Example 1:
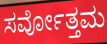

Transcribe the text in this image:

ಸರ್ವೋತ್ತಮ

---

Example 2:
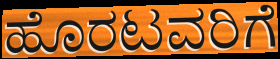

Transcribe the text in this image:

ಹೊರಟವರಿಗೆ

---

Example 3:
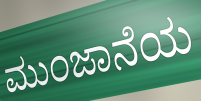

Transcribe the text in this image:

ಮುಂಜಾನೆಯ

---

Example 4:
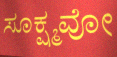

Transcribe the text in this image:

ಸೂಕ್ಷ್ಮವೋ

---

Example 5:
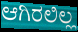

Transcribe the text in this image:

ಆಗಿರಲಿಲ್ಲ